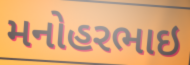
મનોહરભાઇ